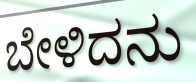
ಬೇಳಿದನು